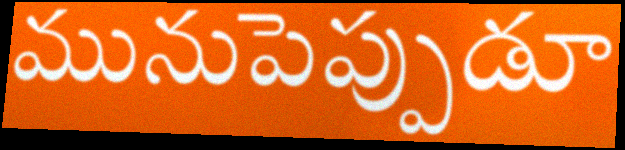
మునుపెప్పుడూ